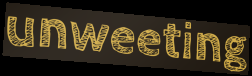
unweeting